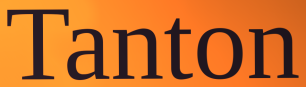
Tanton